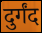
दुर्गंद